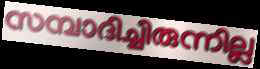
സമ്പാദിച്ചിരുന്നില്ല